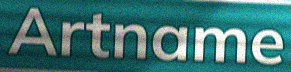
Artname